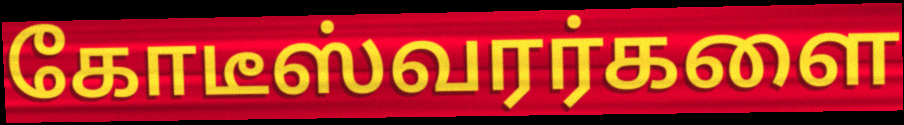
கோடீஸ்வரர்களை